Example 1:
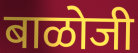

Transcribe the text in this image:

बाळोजी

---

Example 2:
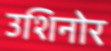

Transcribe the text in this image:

उशिनोर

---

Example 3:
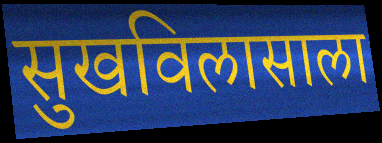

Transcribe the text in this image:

सुखविलासाला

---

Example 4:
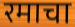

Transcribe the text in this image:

रमाचा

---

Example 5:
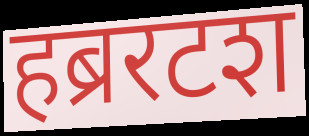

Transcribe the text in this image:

हब्ररटश